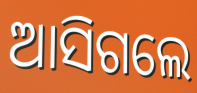
ଆସିଗଲେ